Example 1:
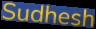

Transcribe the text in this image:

Sudhesh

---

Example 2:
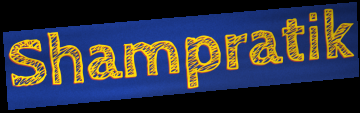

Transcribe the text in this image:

Shampratik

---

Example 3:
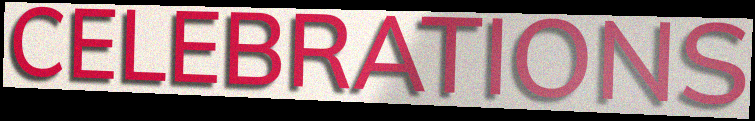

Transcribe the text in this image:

CELEBRATIONS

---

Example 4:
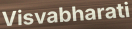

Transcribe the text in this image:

Visvabharati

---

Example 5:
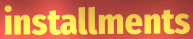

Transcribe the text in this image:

installments